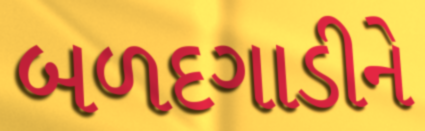
બળદગાડીને